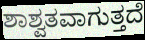
ಶಾಶ್ವತವಾಗುತ್ತದೆ